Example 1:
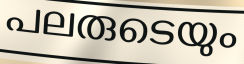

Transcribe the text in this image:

പലരുടെയും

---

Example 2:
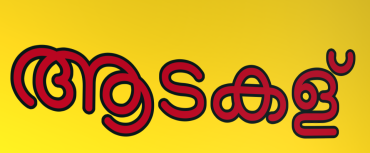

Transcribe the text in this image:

ആടകള്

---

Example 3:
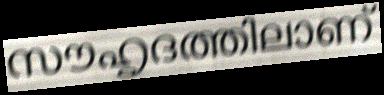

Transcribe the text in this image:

സൗഹൃദത്തിലാണ്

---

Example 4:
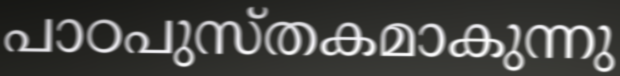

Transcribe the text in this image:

പാഠപുസ്തകമാകുന്നു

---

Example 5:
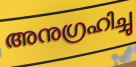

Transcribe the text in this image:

അനുഗ്രഹിച്ചു